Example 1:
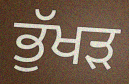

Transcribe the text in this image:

ਭੁੱਖੜ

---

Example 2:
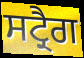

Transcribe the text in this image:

ਸਟ੍ਰੈਗ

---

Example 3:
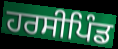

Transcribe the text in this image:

ਹਰਸੀਪਿੰਡ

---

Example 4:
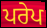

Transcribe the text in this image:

ਪਰੇਪ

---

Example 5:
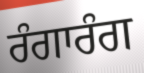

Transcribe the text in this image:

ਰੰਗਾਰੰਗ